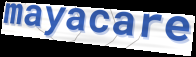
mayacare